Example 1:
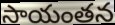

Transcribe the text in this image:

సాయంతన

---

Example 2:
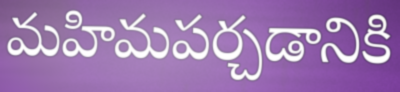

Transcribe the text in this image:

మహిమపర్చడానికి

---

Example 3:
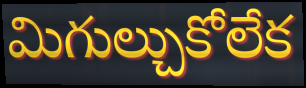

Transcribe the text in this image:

మిగుల్చుకోలేక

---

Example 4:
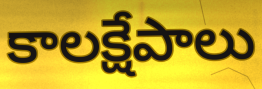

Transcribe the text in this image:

కాలక్షేపాలు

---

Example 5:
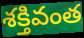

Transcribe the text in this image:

శక్తివంత